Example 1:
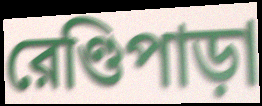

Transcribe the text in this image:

রেণ্ডিপাড়া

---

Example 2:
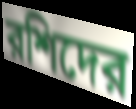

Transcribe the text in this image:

রশিদের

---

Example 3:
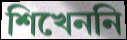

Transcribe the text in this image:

শিখেননি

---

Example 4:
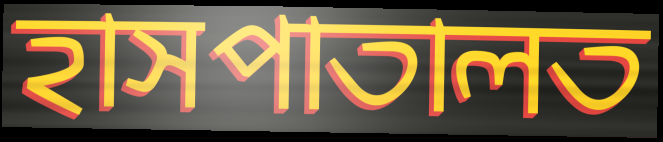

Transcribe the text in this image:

হাসপাতালত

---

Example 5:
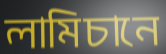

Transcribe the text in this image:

লামিচানে